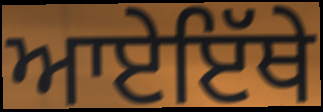
ਆਏਇੱਥੇ